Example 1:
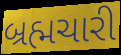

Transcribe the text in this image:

બ્રહ્મચારી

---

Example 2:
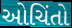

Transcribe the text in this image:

ઓચિંતો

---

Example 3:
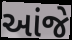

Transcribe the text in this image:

આંજે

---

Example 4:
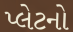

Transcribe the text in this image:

પ્લેટનો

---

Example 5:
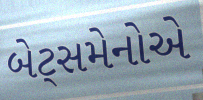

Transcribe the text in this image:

બેટ્સમેનોએ